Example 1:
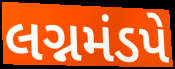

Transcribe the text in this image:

લગ્નમંડપે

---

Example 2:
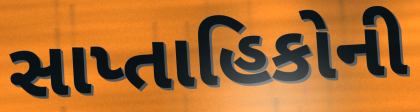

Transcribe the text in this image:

સાપ્તાહિકોની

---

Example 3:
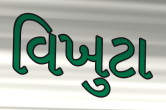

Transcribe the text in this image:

વિખુટા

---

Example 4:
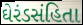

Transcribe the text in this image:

ઘેરંડસંહિતા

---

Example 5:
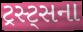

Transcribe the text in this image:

ટ્રસ્ટ્સના